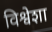
विश्वेशा